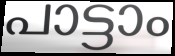
പാട്ടാം